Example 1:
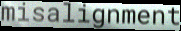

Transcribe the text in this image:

misalignment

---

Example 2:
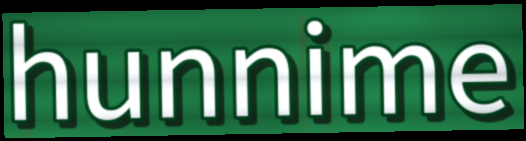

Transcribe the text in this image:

hunnime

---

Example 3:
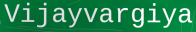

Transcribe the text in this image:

Vijayvargiya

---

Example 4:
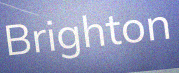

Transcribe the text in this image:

Brighton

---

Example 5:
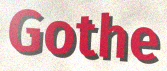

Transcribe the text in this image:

Gothe